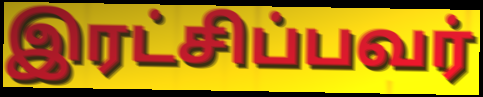
இரட்சிப்பவர்